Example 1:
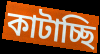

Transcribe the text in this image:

কাটাচ্ছি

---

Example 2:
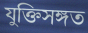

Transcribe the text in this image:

যুক্তিসঙ্গত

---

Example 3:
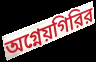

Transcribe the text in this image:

অগ্নেয়গিরির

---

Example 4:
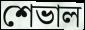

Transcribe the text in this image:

শেভাল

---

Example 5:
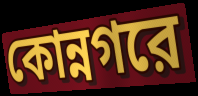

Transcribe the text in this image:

কোন্নগরে